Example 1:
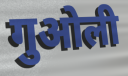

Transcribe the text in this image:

गुओली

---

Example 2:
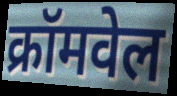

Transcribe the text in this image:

क्रॉमवेल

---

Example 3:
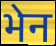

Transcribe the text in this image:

भेन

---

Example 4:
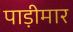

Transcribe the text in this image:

पाड़ीमार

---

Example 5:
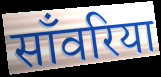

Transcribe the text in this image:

साँवरिया